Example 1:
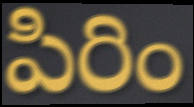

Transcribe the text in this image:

పిరిం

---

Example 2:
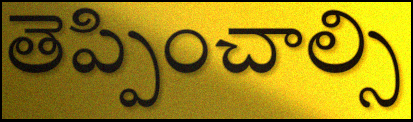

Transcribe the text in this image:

తెప్పించాల్సి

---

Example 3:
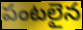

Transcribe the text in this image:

పంటలైన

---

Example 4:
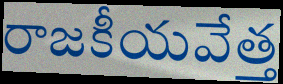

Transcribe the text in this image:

రాజకీయవేత్త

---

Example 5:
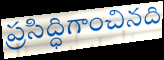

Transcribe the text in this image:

ప్రసిద్ధిగాంచినది